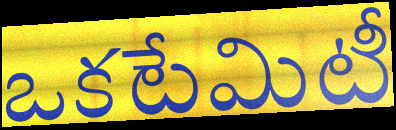
ఒకటేమిటీ